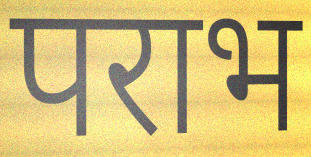
पराभ